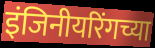
इंजिनीयरिंगच्या